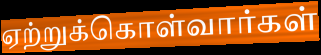
ஏற்றுக்கொள்வார்கள்